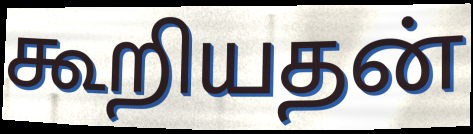
கூறியதன்